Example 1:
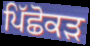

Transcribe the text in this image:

ਪਿੱਛੋਕੜ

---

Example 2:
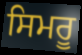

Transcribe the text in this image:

ਸਿਮਰੂ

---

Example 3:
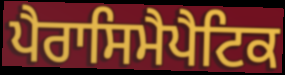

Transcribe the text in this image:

ਪੈਰਾਸਿਮੈਪੈਟਿਕ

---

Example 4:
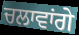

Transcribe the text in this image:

ਚਲਾਵਾਂਗੇ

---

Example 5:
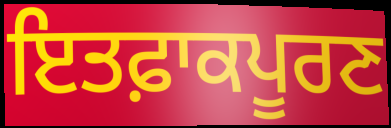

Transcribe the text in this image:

ਇਤਫ਼ਾਕਪੂਰਣ